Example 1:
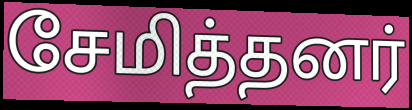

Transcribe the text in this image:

சேமித்தனர்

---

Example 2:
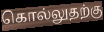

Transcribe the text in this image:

கொல்லுதற்கு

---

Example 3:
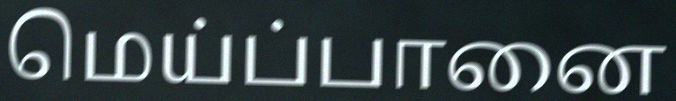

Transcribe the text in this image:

மெய்ப்பானை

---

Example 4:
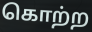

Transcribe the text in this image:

கொற்ற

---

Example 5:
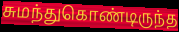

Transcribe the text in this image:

சுமந்துகொண்டிருந்த